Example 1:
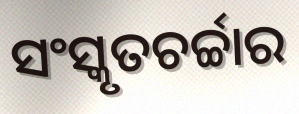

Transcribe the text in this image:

ସଂସ୍କୃତଚର୍ଚ୍ଚାର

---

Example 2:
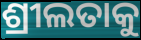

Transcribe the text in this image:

ଶ୍ରୀଲତାକୁ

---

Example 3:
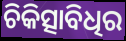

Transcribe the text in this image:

ଚିକିତ୍ସାବିଧିର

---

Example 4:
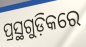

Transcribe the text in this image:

ପ୍ରସ୍ଥଗୁଡ଼ିକରେ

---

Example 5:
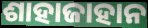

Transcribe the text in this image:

ଶାହାଜାହାନ